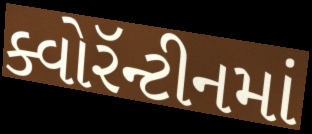
ક્વોરૅન્ટીનમાં